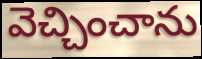
వెచ్చించాను